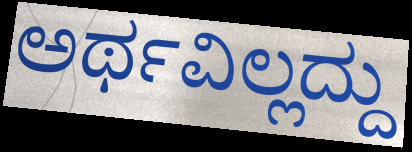
ಅರ್ಥವಿಲ್ಲದ್ದು